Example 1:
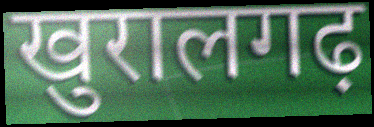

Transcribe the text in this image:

खुरालगढ़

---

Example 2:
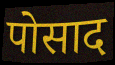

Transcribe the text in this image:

पोसाद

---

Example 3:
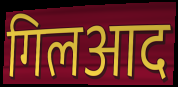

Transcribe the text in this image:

गिलआद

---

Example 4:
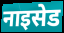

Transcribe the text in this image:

नाइसेड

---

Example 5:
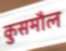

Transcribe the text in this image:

कुसमौल